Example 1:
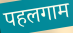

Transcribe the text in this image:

पहलगाम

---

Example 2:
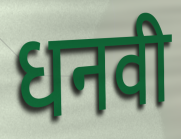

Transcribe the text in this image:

धनवी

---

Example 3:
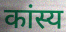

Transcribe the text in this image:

कांस्य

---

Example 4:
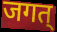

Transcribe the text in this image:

जगत्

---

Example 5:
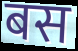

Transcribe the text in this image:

बस